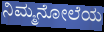
ನಿಮ್ಮನೋಲೆಯ